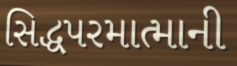
સિદ્ધપરમાત્માની